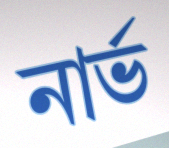
নার্ভ